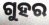
ଗୁହର